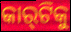
କାର୍‍ଟିକୁ